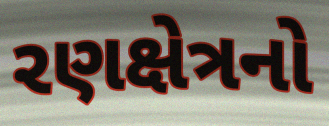
રણક્ષેત્રનો